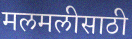
मलमलीसाठी